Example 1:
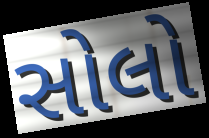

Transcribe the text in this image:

સોલો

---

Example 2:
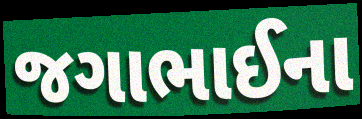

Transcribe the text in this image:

જગાભાઈના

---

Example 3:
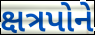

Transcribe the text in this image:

ક્ષત્રપોને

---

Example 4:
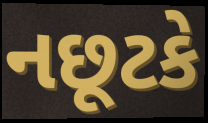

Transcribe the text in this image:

નછૂટકે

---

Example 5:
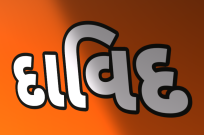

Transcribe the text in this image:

દાવિદ